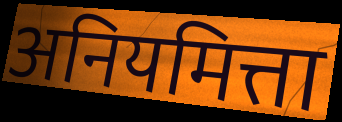
अनियमित्ता